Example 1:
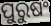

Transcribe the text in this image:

ପୁରୁଷଂ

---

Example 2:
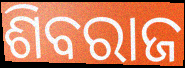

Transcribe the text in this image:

ଶିବରାଜ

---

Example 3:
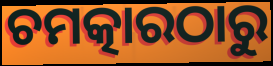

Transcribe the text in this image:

ଚମତ୍କାରଠାରୁ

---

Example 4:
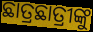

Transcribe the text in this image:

ଛାତ୍ରଛାତ୍ରୀଙ୍କୁ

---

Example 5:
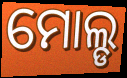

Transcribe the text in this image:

ମୋଲ୍ଡ